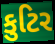
કુટિર